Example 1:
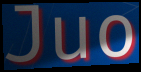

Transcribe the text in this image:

Juo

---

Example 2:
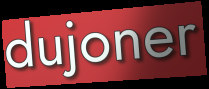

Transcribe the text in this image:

dujoner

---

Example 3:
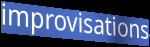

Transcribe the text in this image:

improvisations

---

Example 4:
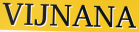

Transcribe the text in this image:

VIJNANA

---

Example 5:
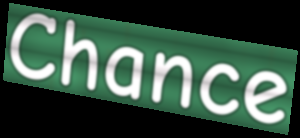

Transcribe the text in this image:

Chance